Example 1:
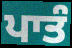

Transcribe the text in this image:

ਪਾਤੰ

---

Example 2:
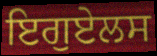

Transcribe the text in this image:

ਇਗੁਏਲਸ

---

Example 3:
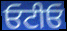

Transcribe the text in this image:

ਓਟੀਓ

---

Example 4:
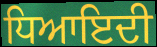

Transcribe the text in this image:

ਧਿਆਇਦੀ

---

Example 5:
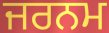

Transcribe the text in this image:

ਜਰਨਮ